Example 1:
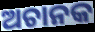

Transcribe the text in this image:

ଅଚାନକ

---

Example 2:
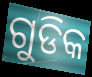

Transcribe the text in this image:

ଗୁଡିକ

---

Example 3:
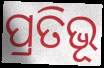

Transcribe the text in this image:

ପ୍ରତିଭୂ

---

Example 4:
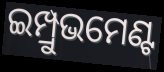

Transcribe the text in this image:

ଇମ୍ପ୍ରୁଭମେଣ୍ଟ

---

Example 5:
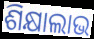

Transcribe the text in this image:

ଶିକ୍ଷାଲାଭ